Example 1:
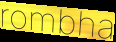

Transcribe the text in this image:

rombha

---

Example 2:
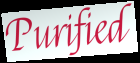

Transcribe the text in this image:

Purified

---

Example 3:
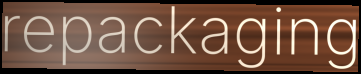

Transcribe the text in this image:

repackaging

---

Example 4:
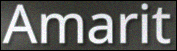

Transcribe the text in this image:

Amarit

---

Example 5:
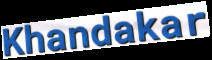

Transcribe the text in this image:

Khandakar